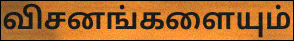
விசனங்களையும்